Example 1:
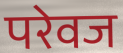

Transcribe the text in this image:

परेवज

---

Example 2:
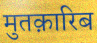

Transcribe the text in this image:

मुतक़ारिब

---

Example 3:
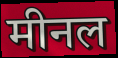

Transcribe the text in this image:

मीनल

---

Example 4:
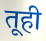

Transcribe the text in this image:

तूही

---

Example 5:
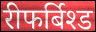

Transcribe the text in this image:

रीफर्बिश्ड